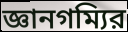
জ্ঞানগম্যির